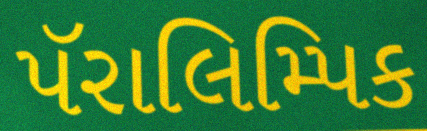
પૅરાલિમ્પિક